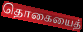
தொகையைத்